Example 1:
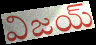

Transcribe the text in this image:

విజయ్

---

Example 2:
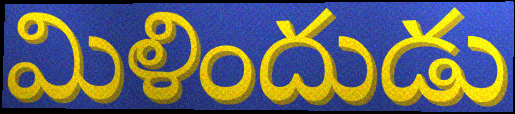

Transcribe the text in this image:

మిళిందుడు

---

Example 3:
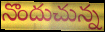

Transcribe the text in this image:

నొందుచున్న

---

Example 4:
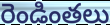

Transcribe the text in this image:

రెండింతలు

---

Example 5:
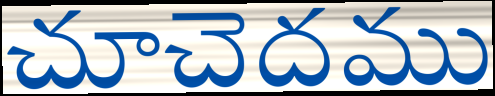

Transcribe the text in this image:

చూచెదము